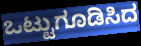
ಒಟ್ಟುಗೂಡಿಸಿದ